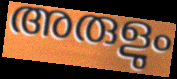
അരുളും